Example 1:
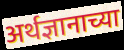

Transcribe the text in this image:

अर्थज्ञानाच्या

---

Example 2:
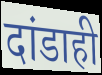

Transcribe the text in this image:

दांडाही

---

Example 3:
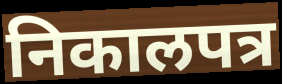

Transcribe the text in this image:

निकालपत्र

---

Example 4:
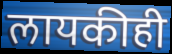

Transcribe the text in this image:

लायकीही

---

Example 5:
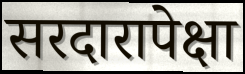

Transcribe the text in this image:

सरदारापेक्षा